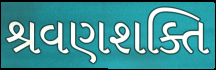
શ્રવણશક્તિ